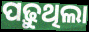
ପଢ଼ୁଥିଲା